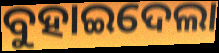
ବୁହାଇଦେଲା